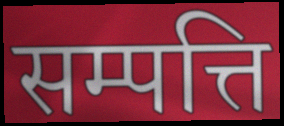
सम्पत्ति